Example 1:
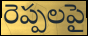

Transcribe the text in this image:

రెప్పలపై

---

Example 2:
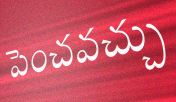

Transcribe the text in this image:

పెంచవచ్చు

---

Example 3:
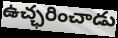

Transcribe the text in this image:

ఉచ్ఛరించాడు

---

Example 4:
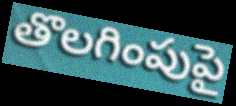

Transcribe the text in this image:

తొలగింపుపై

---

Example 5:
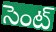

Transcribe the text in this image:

సెంట్